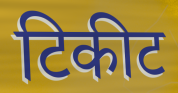
टिकीट